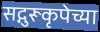
सद्गुरूकृपेच्या